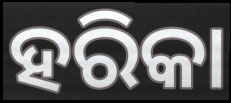
ହରିକା